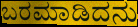
ಬರಮಾಡಿದನು